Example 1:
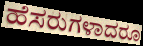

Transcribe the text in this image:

ಹೆಸರುಗಳಾದರೂ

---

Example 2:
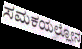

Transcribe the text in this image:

ಸಮಕಯಲ್ಲೋನ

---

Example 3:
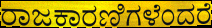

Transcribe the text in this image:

ರಾಜಕಾರಣಿಗಳೆಂದರೆ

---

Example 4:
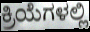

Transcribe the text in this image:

ಕ್ರಿಯೆಗಳಲ್ಲಿ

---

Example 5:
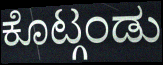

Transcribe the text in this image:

ಕೊಟ್ಗಂಡು